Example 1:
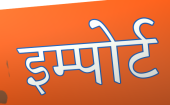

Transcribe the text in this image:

इम्पोर्ट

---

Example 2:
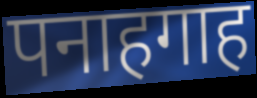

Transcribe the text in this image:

पनाहगाह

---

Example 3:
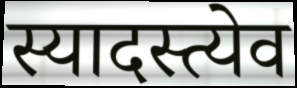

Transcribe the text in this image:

स्यादस्त्येव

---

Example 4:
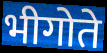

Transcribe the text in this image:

भीगोते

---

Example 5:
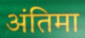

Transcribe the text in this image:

अंतिमा